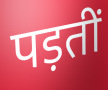
पड़तीं